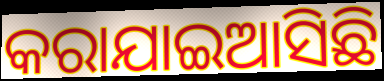
କରାଯାଇଆସିଛି